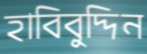
হাবিবুদ্দিন